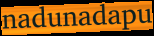
nadunadapu